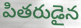
పితరుడైన